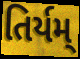
તિર્યમ્